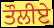
ਤੌਲੀਏ